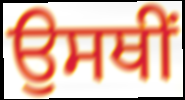
ਉਸਥੀਂ